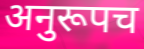
अनुरूपच